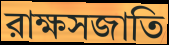
রাক্ষসজাতি